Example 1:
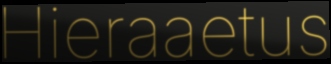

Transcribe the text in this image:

Hieraaetus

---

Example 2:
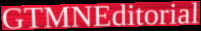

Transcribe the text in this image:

GTMNEditorial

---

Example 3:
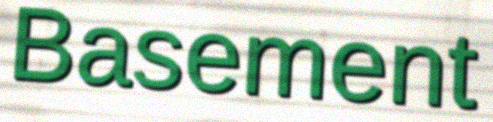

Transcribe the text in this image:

Basement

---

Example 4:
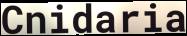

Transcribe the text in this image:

Cnidaria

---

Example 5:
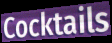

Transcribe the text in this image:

Cocktails